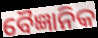
ବୈଜ୍ଞାନିକ